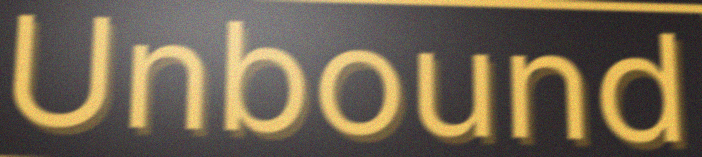
Unbound